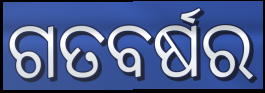
ଗତବର୍ଷର